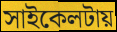
সাইকেলটায়